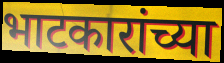
भाटकारांच्या